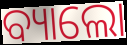
ବ୍ୟାଲୋ